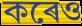
কৰেও